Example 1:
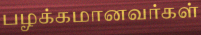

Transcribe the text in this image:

பழக்கமானவர்கள்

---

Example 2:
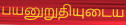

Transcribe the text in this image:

பயனுறுதியுடைய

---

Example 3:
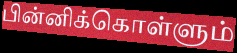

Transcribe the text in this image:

பின்னிக்கொள்ளும்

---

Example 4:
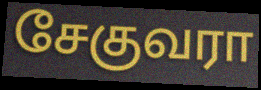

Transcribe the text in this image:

சேகுவரா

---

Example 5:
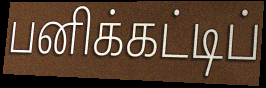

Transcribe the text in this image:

பனிக்கட்டிப்